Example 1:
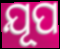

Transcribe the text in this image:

ଯୂପ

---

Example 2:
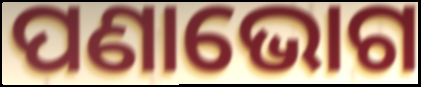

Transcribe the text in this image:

ପଣାଭୋଗ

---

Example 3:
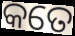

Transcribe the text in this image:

କତେ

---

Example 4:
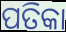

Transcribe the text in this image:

ପତିକା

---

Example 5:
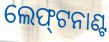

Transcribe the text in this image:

ଲେଫ୍‌ଟନାଣ୍ଟ